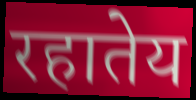
रहातेय